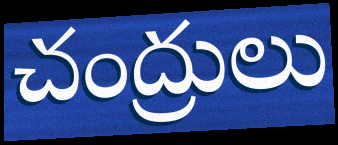
చంద్రులు